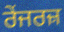
ਰੇਂਜਰਜ਼